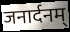
जनार्दनम्